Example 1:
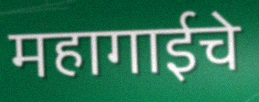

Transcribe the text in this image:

महागाईचे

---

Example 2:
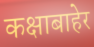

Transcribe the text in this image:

कक्षाबाहेर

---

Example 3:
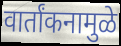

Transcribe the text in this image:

वार्तांकनामुळे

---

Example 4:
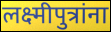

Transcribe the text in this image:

लक्ष्मीपुत्रांना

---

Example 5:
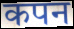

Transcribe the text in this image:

कपन